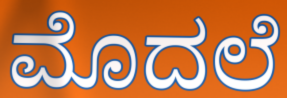
ಮೊದಲೆ